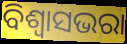
ବିଶ୍ୱାସଭରା